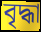
বৃদ্ধা